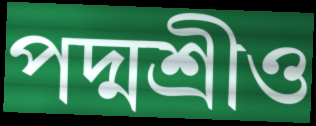
পদ্মশ্রীও